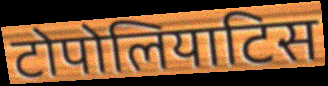
टोपोलियाटिस